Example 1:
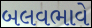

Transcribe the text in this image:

બલવભાવે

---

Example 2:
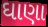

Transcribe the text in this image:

ઘાણા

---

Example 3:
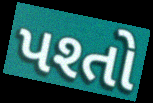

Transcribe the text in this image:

પશ્તો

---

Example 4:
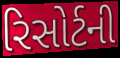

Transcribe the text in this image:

રિસોર્ટની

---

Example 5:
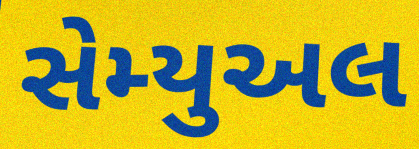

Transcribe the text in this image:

સેમ્યુઅલ